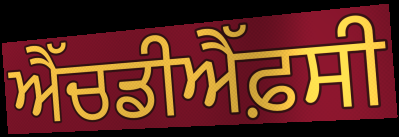
ਐੱਚਡੀਐੱਫ਼ਸੀ